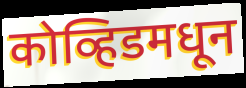
कोव्हिडमधून